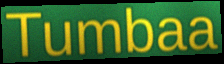
Tumbaa